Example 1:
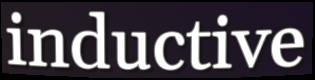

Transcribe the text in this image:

inductive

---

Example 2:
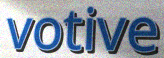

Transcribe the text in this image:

votive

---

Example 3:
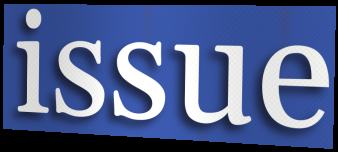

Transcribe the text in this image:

issue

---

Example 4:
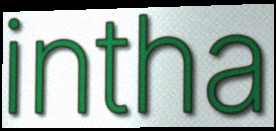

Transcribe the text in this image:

intha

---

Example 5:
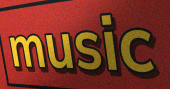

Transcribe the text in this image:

music